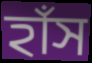
হাঁস